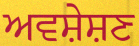
ਅਵਸ਼ੇਸ਼ਣ